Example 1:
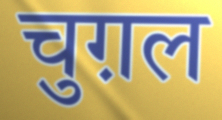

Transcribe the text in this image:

चुग़ल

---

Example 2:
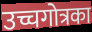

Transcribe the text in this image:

उच्चगोत्रका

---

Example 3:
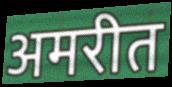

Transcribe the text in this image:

अमरीत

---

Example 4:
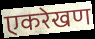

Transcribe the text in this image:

एकरेखण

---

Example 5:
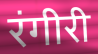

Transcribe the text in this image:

रंगीरी